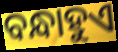
ବନ୍ଧାହୁଏ